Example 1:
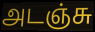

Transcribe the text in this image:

அடஞ்சு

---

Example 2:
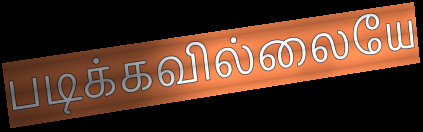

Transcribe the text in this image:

படிக்கவில்லையே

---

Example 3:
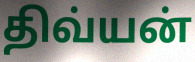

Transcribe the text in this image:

திவ்யன்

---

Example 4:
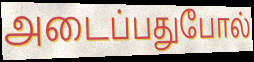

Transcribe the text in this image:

அடைப்பதுபோல்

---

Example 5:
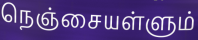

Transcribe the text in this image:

நெஞ்சையள்ளும்